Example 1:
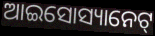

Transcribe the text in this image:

ଆଇସୋସ୍ୟାନେଟ୍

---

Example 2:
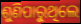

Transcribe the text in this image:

ଶୁଣିପାରୁଥିଲେ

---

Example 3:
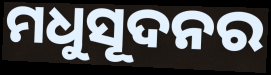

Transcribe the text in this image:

ମଧୁସୂଦନର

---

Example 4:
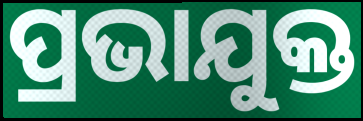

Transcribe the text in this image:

ପ୍ରଭାଯୁକ୍ତ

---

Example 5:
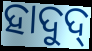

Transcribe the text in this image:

ହାଦୁଦ୍